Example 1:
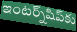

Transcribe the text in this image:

ఇంటర్న్‌షిప్‌కు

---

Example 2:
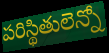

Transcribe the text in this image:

పరిస్థితులెన్నో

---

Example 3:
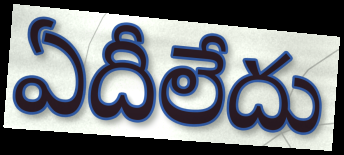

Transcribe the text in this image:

ఏదీలేదు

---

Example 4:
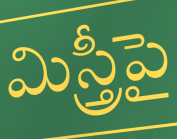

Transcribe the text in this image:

మిస్త్రీపై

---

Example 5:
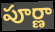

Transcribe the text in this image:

పూర్ణా